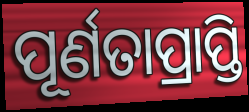
ପୂର୍ଣତାପ୍ରାପ୍ତି